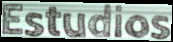
Estudios